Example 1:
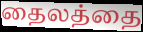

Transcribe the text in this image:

தைலத்தை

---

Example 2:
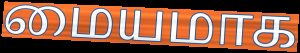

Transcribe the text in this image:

மையமாக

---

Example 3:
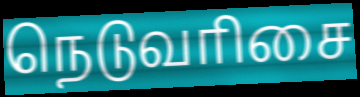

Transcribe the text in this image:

நெடுவரிசை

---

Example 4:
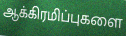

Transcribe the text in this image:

ஆக்கிரமிப்புகளை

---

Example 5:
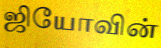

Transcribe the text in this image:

ஜியோவின்